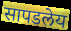
सापडलेय